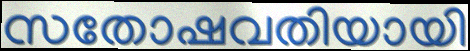
സതോഷവതിയായി